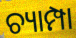
ଚ୍ୟାମ୍ପା